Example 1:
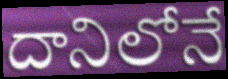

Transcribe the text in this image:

దానిలోనే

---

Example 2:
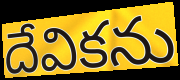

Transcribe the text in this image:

దేవికను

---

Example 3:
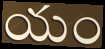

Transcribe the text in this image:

యం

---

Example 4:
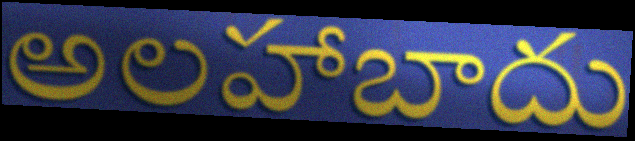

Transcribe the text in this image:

అలహాబాదు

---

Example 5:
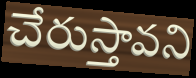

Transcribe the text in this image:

చేరుస్తావని